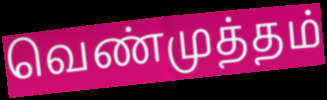
வெண்முத்தம்